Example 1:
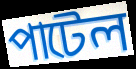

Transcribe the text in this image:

পাটেল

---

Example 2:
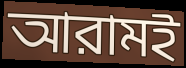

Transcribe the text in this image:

আরামই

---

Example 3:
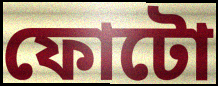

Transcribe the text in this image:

ফোটো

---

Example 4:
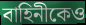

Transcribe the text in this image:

বাহিনীকেও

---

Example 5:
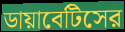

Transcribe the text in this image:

ডায়াবেটিসের